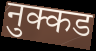
नुक्कड